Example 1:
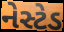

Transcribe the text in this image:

નેસ્ટેડ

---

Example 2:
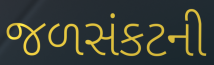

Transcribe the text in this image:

જળસંકટની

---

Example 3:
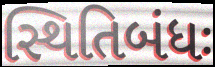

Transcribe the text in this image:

સ્થિતિબંધઃ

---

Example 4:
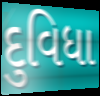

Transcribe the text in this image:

દુવિધા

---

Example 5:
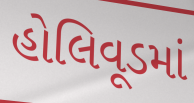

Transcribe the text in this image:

હોલિવૂડમાં